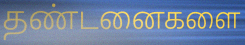
தண்டனைகளை